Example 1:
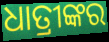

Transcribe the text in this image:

ଧାତ୍ରୀଙ୍କର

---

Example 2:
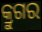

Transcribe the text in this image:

କ୍ରୁଗର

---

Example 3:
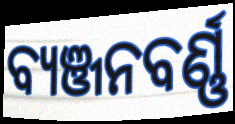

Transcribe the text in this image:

ବ୍ୟଞ୍ଜନବର୍ଣ୍ଣ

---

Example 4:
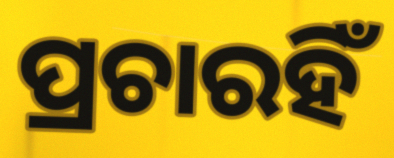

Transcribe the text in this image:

ପ୍ରଚାରହିଁ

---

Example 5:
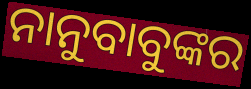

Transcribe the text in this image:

ନାନୁବାବୁଙ୍କର